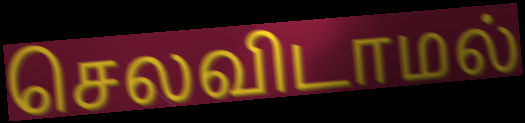
செலவிடாமல்